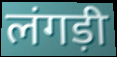
लंगड़ी